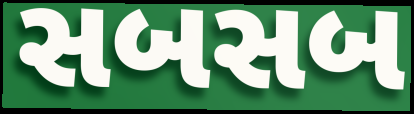
સબસબ